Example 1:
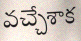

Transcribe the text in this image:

వచ్చేశాక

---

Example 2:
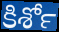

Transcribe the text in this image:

కిశోర్‍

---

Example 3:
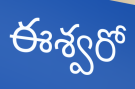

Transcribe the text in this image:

ఈశ్వరో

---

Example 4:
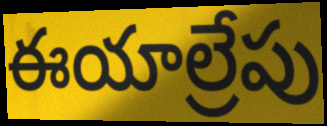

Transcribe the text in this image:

ఈయాల్రేపు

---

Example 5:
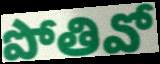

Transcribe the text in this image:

పోతివో